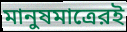
মানুষমাত্রেরই